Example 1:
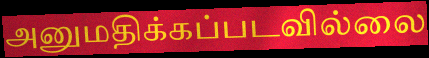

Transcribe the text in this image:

அனுமதிக்கப்படவில்லை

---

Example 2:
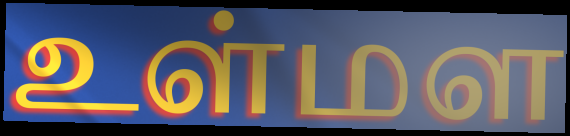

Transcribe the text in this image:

உள்மள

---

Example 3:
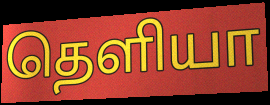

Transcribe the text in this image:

தெளியா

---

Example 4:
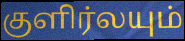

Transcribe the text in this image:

குளிர்லயும்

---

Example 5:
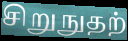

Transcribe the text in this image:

சிறுநுதற்